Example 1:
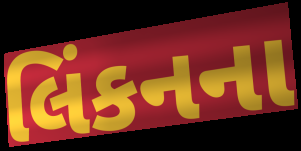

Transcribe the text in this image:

લિંકનના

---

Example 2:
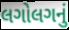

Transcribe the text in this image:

લગોલગનું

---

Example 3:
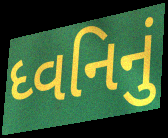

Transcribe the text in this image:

ધ્વનિનું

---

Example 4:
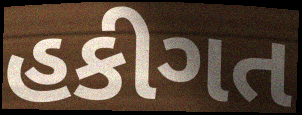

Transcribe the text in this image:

હકીગત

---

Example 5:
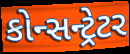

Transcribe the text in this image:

કોન્સન્ટ્રેટર